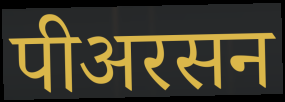
पीअरसन